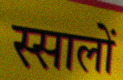
स्सालों